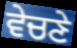
ਵੇਚਣੇ